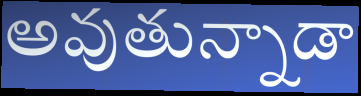
అవుతున్నాడా